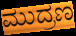
ಮುದ್ರಣ